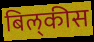
बिल्कीस